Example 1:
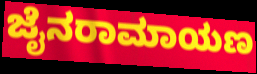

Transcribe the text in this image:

ಜೈನರಾಮಾಯಣ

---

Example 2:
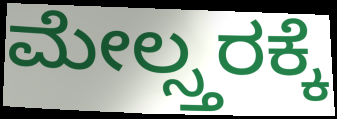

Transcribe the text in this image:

ಮೇಲ್ಸ್ತರಕ್ಕೆ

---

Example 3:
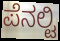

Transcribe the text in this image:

ಪೆನಲ್ಟಿ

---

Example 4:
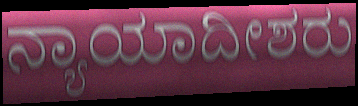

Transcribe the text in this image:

ನ್ಯಾಯಾದೀಶರು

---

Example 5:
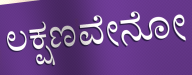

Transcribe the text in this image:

ಲಕ್ಷಣವೇನೋ